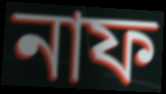
নাফ